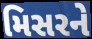
મિસરને